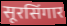
सूरसिंगार